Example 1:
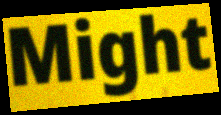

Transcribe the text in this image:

Might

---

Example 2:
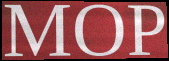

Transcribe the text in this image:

MOP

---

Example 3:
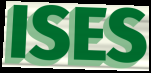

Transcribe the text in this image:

ISES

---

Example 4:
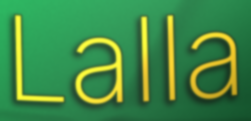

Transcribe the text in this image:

Lalla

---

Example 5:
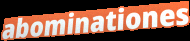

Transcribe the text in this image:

abominationes